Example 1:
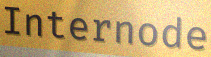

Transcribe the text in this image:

Internode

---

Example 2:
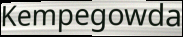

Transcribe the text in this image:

Kempegowda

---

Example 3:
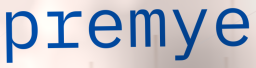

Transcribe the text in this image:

premye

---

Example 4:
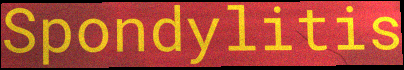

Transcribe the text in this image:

Spondylitis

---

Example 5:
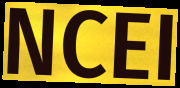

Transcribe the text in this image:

NCEI